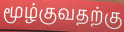
மூழ்குவதற்கு